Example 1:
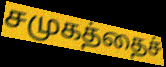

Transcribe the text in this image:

சமுகத்தைச்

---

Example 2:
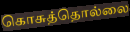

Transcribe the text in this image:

கொசுத்தொல்லை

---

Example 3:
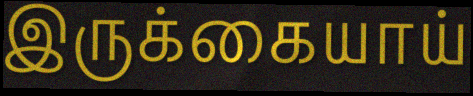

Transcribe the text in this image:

இருக்கையாய்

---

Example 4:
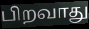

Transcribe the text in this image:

பிறவாது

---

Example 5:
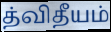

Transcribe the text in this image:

த்விதீயம்